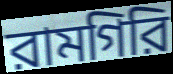
রামগিরি